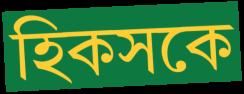
হিকসকে